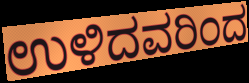
ಉಳಿದವರಿಂದ